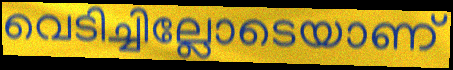
വെടിച്ചില്ലോടെയാണ്